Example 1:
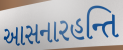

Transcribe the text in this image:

આસનારહન્તિ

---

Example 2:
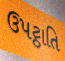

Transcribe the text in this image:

ઉપટ્ઠાતિ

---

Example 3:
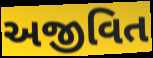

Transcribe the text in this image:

અજીવિત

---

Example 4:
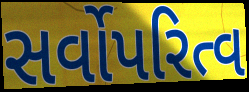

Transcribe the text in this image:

સર્વોપરિત્વ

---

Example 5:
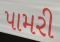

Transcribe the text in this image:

પામરી